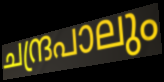
ചന്ദ്രപാലും